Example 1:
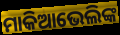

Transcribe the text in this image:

ମାକିଆଭେଲିଙ୍କ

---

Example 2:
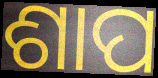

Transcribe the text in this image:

ଶାପ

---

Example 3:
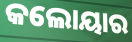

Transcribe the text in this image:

କଲୋୟାର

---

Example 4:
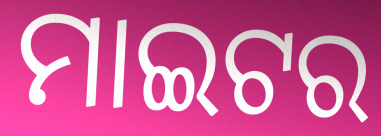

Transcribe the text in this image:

ମାଇଟର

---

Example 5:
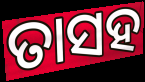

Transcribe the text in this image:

ତାସହ